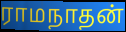
ராமநாதன்